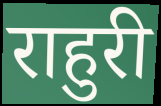
राहुरी